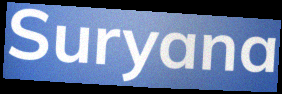
Suryana